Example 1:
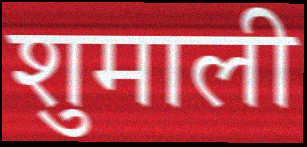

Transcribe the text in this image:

शुमाली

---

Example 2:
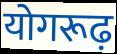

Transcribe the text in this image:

योगरूढ़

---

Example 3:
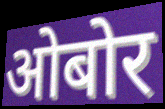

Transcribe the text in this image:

ओबोर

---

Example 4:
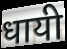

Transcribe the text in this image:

धायी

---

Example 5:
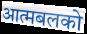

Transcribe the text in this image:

आत्मबलको